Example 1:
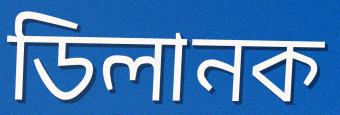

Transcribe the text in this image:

ডিলানক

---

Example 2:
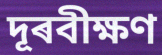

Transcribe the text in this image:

দূৰবীক্ষণ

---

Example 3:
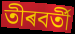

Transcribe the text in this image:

তীৰবৰ্তী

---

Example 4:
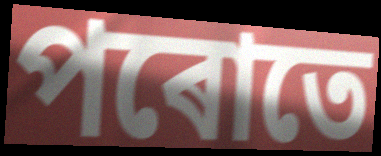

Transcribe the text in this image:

পৰোতে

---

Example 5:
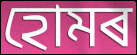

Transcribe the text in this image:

হোমৰ